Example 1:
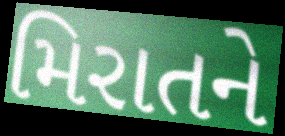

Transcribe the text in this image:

મિરાતને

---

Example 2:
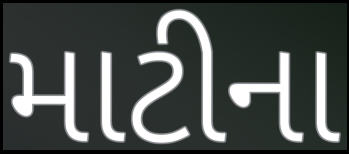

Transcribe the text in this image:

માટીના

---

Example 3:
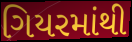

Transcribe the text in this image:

ગિયરમાંથી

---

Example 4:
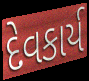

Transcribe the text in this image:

દેવકાર્ય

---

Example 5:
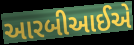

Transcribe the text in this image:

આરબીઆઈએ